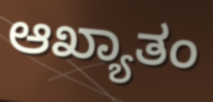
ಆಖ್ಯಾತಂ